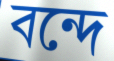
বন্দে